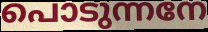
പൊടുന്നനേ